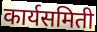
कार्यसमिती